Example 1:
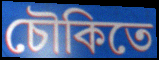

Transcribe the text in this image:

চৌকিতে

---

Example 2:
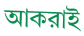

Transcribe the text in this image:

আকরাই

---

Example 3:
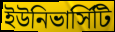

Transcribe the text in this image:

ইউনিভার্সিটি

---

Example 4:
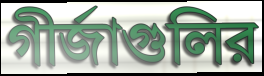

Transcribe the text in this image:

গীর্জাগুলির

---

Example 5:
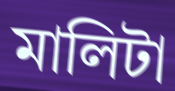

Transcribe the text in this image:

মালিটা